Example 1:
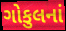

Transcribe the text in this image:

ગોકુલનાં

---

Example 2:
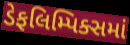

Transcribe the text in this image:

ડેફલિમ્પિક્સમાં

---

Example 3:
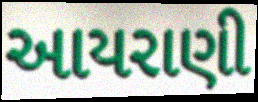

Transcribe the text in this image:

આયરાણી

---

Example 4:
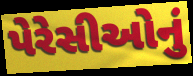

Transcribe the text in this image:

પેરેસીઓનું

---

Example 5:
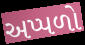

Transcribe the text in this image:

અપ્પળો